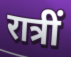
रात्रीं